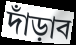
দাঁড়াব